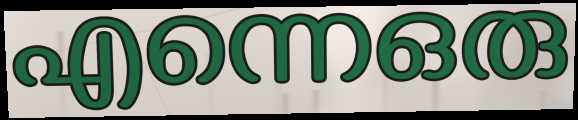
എന്നെഒരു